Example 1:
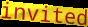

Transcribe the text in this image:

invited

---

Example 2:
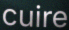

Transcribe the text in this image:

cuire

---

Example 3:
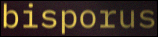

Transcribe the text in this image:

bisporus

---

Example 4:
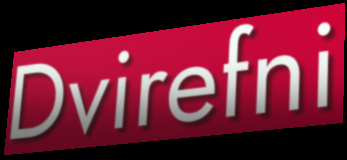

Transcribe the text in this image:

Dvirefni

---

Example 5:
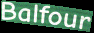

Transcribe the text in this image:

Balfour